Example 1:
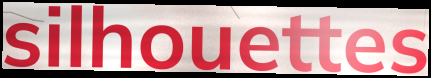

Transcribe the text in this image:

silhouettes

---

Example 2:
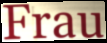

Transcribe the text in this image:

Frau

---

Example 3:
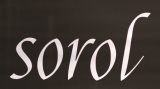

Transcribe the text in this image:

sorol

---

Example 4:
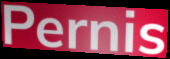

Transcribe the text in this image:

Pernis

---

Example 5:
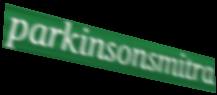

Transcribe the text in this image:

parkinsonsmitra